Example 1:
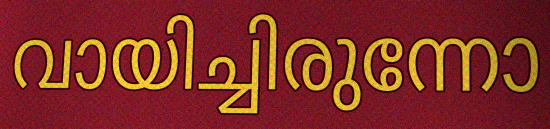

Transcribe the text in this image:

വായിച്ചിരുന്നോ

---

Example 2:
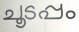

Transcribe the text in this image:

ചൂടപ്പം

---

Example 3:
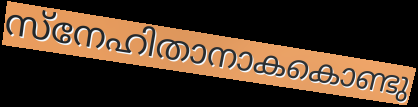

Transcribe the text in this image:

സ്നേഹിതാനാകകൊണ്ടു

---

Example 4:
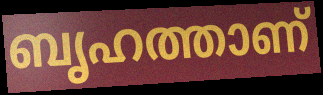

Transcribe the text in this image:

ബൃഹത്താണ്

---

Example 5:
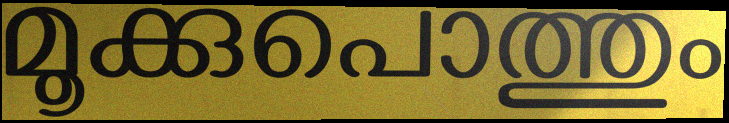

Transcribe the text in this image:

മൂക്കുപൊത്തും